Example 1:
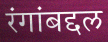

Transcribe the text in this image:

रंगांबद्दल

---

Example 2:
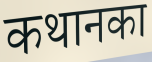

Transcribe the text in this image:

कथानका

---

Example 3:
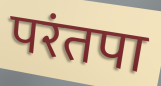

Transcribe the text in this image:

परंतपा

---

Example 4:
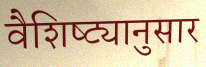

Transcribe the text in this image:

वैशिष्ट्यानुसार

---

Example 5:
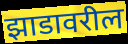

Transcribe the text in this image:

झाडावरील